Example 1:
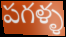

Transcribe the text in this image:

పగళ్ళ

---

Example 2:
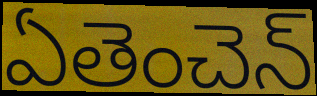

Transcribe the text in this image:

ఏతెంచెన్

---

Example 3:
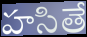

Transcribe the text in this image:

హసితే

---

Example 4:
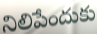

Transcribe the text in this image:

నిలిపేందుకు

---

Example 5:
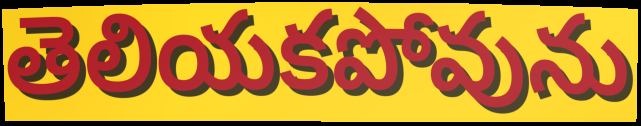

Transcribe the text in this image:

తెలియకపోవును